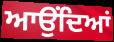
ਆਉਂਦਿਆਂ